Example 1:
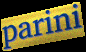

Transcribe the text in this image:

parini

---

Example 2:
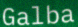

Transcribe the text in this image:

Galba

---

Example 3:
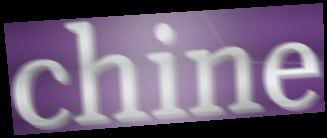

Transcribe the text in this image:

chine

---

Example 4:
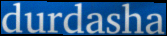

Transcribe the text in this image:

durdasha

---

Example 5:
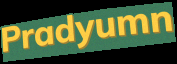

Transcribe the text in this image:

Pradyumn